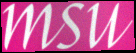
msu